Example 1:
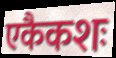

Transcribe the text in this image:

एकैकशः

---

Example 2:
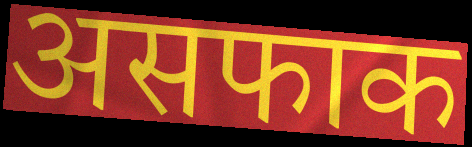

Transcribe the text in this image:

असफाक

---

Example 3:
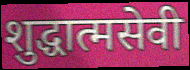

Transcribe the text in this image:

शुद्धात्मसेवी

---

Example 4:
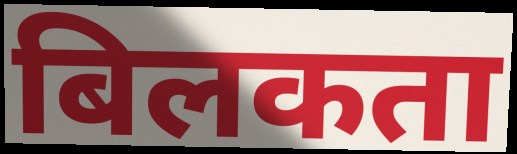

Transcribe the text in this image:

बिलकता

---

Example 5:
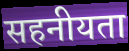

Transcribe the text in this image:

सहनीयता